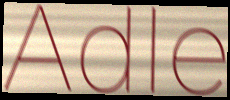
Adle